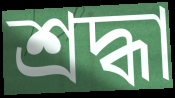
শ্ৰদ্ধা